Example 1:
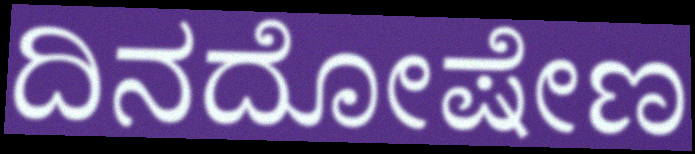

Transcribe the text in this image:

ದಿನದೋಷೇಣ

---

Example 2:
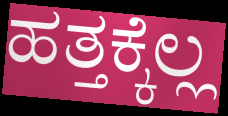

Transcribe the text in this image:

ಹತ್ತಕ್ಕೆಲ್ಲ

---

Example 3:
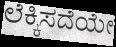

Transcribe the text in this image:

ಲೆಕ್ಕಿಸದೆಯೇ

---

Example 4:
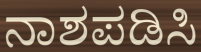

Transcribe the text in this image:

ನಾಶಪಡಿಸಿ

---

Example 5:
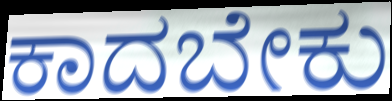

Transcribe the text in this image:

ಕಾದಬೇಕು